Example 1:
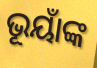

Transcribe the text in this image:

ଭୂୟାଁଙ୍କ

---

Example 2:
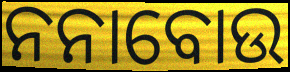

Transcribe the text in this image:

ନନାବୋଉ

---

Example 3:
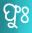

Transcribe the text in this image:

ଫୁଃ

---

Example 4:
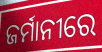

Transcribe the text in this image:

ଜର୍ମାନୀରେ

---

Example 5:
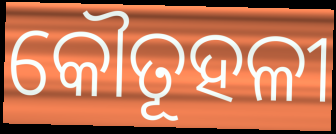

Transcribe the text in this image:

କୌତୂହଳୀ